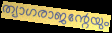
ത്യാഗരാജന്റേയും